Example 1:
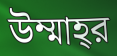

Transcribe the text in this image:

উম্মাহ্‌র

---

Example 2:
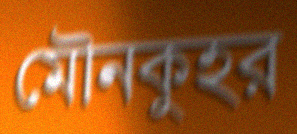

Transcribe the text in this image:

মৌনকুহর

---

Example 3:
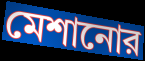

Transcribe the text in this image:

মেশানোর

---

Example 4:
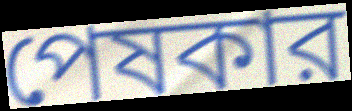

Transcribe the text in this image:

পেষকার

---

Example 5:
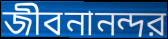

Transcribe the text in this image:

জীবনানন্দর